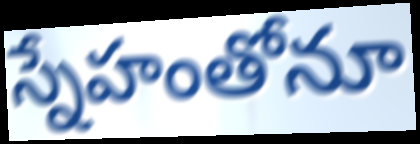
స్నేహంతోనూ